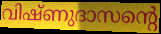
വിഷ്ണുദാസന്റെ